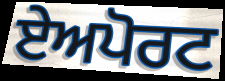
ਏਅਪੋਰਟ